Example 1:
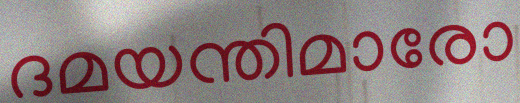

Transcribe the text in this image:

ദമയന്തിമാരോ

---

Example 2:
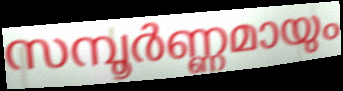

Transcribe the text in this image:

സമ്പൂർണ്ണമായും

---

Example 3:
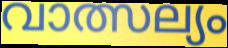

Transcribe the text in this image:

വാത്സല്യം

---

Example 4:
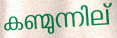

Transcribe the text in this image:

കണ്മുന്നില്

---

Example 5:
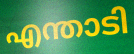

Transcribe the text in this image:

എന്താടി